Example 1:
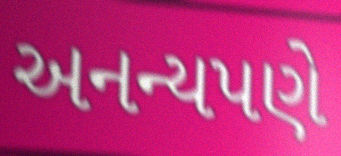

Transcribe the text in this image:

અનન્યપણે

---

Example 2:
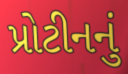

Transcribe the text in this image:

પ્રોટીનનું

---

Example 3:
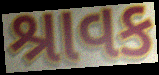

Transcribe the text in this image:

શ્રાવક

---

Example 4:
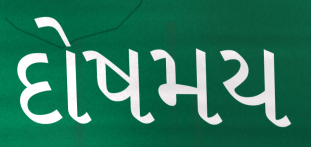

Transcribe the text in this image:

દોષમય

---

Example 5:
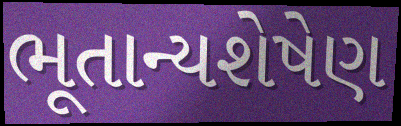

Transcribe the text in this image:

ભૂતાન્યશેષેણ